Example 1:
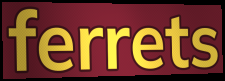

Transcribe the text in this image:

ferrets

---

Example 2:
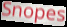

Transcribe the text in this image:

Snopes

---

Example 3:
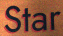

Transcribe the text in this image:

Star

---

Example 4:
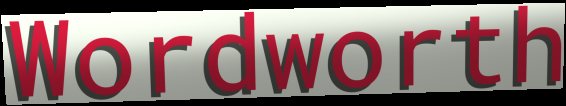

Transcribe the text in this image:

Wordworth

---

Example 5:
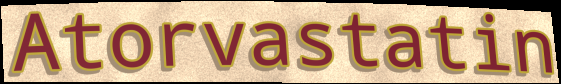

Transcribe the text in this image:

Atorvastatin